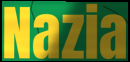
Nazia